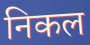
निकल